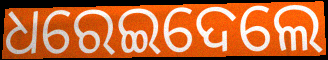
ଧରେଇଦେଲେ